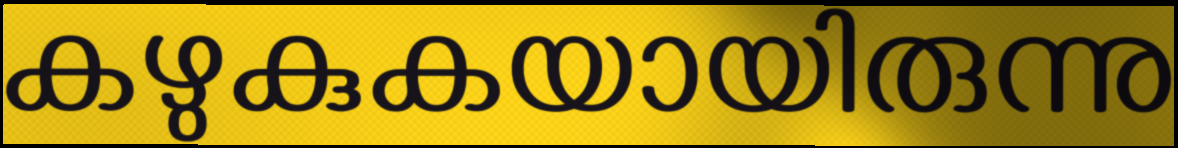
കഴുകുകയായിരുന്നു